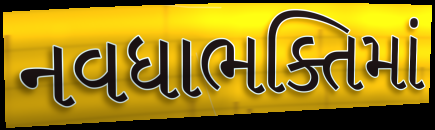
નવધાભક્તિમાં